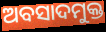
ଅବସାଦମୁକ୍ତ